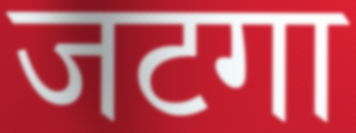
जटगा